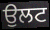
ਉਲਟ